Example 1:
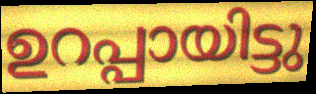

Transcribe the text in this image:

ഉറപ്പായിട്ടു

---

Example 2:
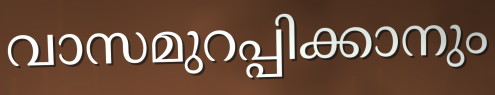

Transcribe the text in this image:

വാസമുറപ്പിക്കാനും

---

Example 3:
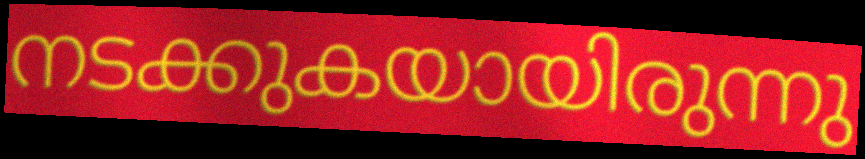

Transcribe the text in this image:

നടക്കുകയായിരുന്നു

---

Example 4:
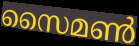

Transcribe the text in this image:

സൈമൺ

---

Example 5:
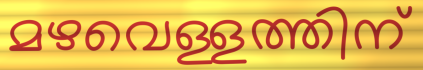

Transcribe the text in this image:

മഴവെള്ളത്തിന്